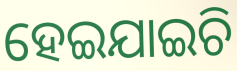
ହେଇଯାଇଚି